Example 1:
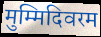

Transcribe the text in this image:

मुम्मिदिवरम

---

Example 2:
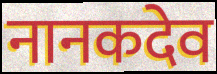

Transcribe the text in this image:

नानकदेव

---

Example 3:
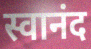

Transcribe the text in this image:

स्वानंद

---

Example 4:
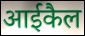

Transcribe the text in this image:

आईकैल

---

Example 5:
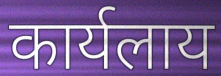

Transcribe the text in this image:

कार्यलाय